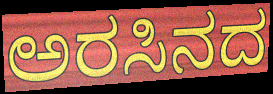
ಅರಸಿನದ